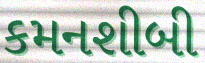
કમનશીબી